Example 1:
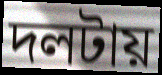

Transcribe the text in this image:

দলটায়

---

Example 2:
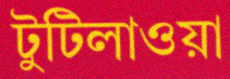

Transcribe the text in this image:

টুটিলাওয়া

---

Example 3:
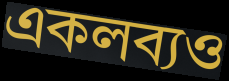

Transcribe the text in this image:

একলব্যও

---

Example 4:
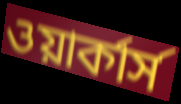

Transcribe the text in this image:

ওয়ার্কার্স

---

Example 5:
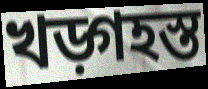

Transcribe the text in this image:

খড়্গহস্ত